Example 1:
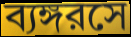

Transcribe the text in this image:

ব্যঙ্গরসে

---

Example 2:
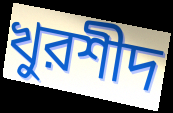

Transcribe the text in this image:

খুরশীদ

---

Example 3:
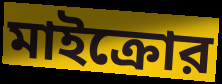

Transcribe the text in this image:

মাইক্রোর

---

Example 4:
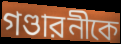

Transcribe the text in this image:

গণ্ডারনীকে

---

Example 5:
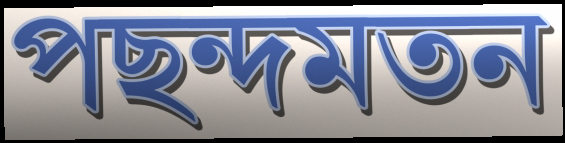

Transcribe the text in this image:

পছন্দমতন